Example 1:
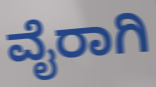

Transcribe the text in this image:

ವೈರಾಗಿ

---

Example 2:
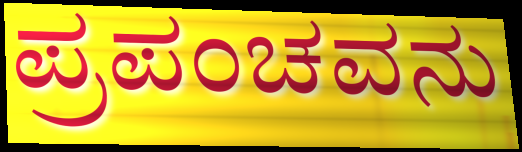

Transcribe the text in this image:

ಪ್ರಪಂಚವನು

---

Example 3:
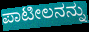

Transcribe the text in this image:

ಪಾಟೀಲನನ್ನು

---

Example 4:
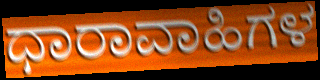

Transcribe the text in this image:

ಧಾರಾವಾಹಿಗಳ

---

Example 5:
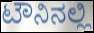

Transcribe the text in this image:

ಟೌನಿನಲ್ಲಿ